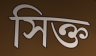
সিক্ত